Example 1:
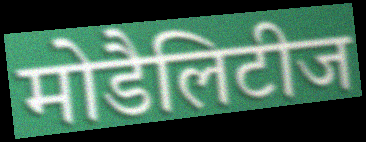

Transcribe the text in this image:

मोडैलिटीज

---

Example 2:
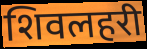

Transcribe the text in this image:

शिवलहरी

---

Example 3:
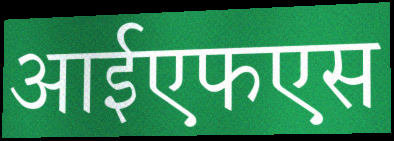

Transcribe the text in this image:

आईएफएस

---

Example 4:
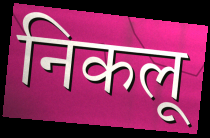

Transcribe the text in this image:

निकलू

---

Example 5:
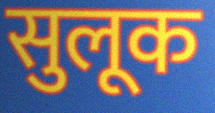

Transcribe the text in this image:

सुलूक